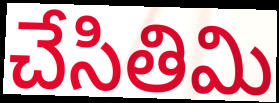
చేసితిమి